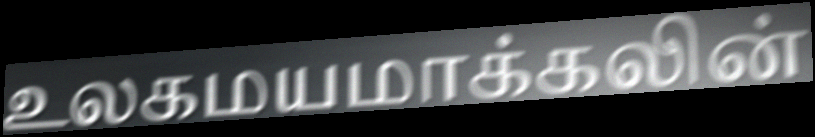
உலகமயமாக்கலின்